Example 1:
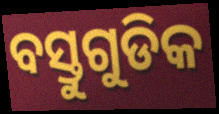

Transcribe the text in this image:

ବସ୍ତୁଗୁଡିକ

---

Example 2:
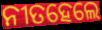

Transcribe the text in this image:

ନୀତହେଲେ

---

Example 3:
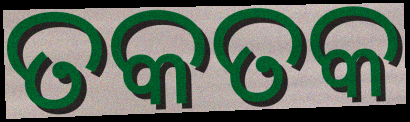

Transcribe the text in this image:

ତକତକ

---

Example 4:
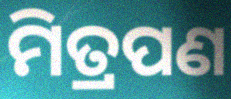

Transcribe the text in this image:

ମିତ୍ରପଣ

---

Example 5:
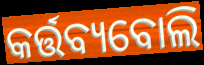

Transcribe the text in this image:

କର୍ତ୍ତବ୍ୟବୋଲି